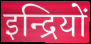
इन्द्रियों